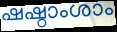
ഷഷ്ഠാംശാം